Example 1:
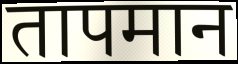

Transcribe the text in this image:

तापमान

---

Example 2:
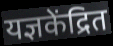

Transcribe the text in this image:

यज्ञकेंद्रित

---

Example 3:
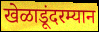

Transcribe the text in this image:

खेळाडूंदरम्यान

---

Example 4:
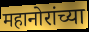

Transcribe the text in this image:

महानोरांच्या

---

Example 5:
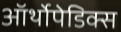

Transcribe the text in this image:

ऑर्थोपेडिक्स